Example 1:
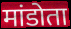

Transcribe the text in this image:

मांडोता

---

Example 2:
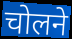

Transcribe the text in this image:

चोलने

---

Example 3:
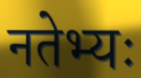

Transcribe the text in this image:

नतेभ्यः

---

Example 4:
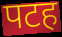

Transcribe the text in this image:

पटह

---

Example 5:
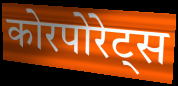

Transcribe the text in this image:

कोरपोरेट्स